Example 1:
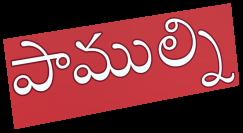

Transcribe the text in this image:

పాముల్ని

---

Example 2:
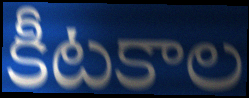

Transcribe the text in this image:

కీటకాల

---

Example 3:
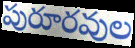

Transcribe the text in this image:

పురూరవుల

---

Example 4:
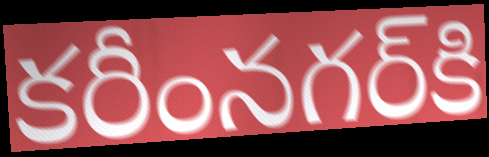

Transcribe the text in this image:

కరీంనగర్‌కి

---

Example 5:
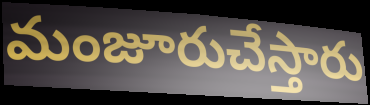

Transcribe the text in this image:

మంజూరుచేస్తారు